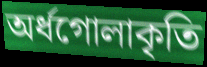
অর্ধগোলাকৃতি